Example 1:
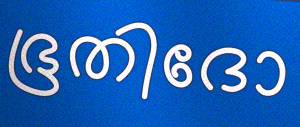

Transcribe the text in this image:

ഭൂതിദോ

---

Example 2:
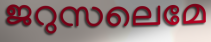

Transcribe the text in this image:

ജറുസലെമേ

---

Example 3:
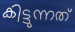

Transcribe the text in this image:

കിട്ടുന്നത്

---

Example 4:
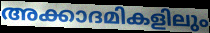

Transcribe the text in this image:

അക്കാദമികളിലും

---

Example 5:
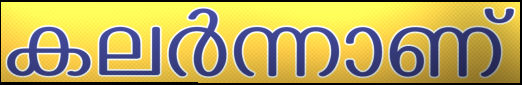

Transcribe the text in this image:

കലർന്നാണ്